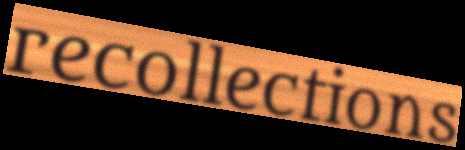
recollections